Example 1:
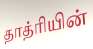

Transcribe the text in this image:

தாத்ரியின்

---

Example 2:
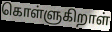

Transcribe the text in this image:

கொள்ளுகிறாள்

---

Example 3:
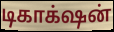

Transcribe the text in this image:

டிகாக்‌ஷன்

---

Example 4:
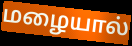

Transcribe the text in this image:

மழையால்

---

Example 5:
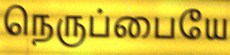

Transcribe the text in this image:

நெருப்பையே